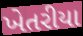
ખેતરીયા